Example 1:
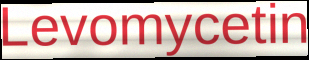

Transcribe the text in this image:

Levomycetin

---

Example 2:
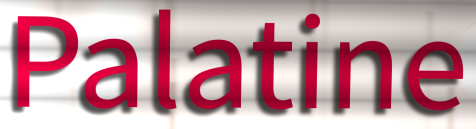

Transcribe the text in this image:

Palatine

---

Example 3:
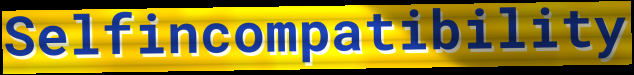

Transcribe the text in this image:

Selfincompatibility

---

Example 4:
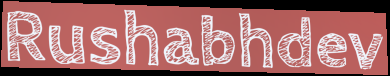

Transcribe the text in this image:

Rushabhdev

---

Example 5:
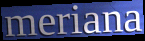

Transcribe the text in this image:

meriana